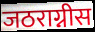
जठराग्नीस